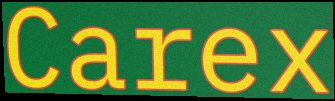
Carex